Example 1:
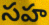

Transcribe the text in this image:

సహ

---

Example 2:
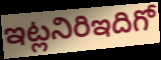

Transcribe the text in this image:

ఇట్లనిరిఇదిగో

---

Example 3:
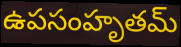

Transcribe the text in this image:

ఉపసంహృతమ్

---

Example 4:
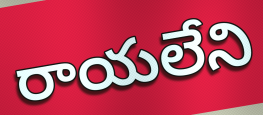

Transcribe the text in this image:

రాయలేని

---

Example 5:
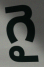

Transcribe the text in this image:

గై